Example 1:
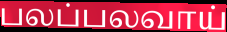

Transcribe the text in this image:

பலப்பலவாய்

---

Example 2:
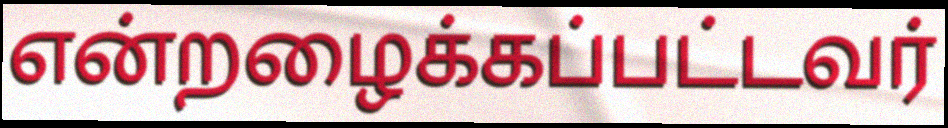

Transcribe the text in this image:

என்றழைக்கப்பட்டவர்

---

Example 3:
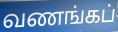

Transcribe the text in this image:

வணங்கப்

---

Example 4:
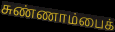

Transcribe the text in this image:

சுண்ணாம்பைக்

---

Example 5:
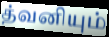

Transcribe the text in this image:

த்வனியும்